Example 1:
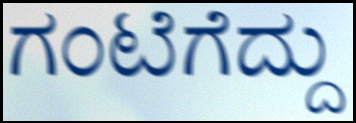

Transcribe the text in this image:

ಗಂಟೆಗೆದ್ದು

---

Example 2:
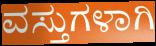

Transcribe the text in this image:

ವಸ್ತುಗಳಾಗಿ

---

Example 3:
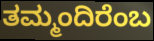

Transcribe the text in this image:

ತಮ್ಮಂದಿರೆಂಬ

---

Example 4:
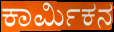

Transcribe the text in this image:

ಕಾರ್ಮಿಕನ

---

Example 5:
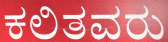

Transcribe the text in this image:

ಕಲಿತವರು